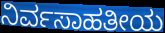
ನಿರ್ವಸಾಹತೀಯ